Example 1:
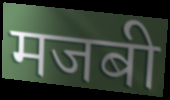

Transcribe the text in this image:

मजबी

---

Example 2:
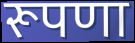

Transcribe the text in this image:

रूपणा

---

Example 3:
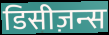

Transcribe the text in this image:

डिसीज़न्स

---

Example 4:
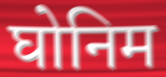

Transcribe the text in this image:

घोनिम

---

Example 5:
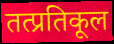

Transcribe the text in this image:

तत्प्रतिकूल